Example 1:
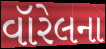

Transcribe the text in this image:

વૉરેલના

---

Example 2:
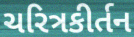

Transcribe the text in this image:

ચરિત્રકીર્તન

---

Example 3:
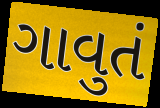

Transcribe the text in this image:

ગાવુતં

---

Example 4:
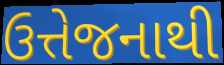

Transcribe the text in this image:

ઉત્તેજનાથી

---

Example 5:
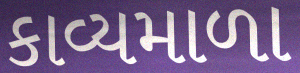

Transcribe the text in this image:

કાવ્યમાળા